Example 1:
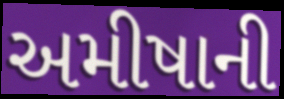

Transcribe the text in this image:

અમીષાની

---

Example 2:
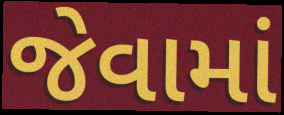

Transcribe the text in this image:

જેવામાં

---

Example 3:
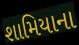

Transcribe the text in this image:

શામિયાના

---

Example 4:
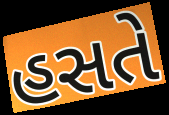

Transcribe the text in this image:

હસતે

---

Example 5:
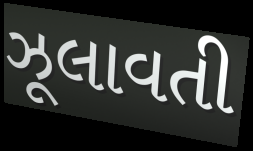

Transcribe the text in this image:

ઝૂલાવતી